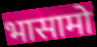
भासामो